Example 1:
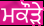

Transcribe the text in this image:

ਮਕੌੜੇ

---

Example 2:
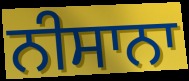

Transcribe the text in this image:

ਨੀਸਾਨਾ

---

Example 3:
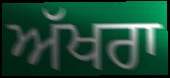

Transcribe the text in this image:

ਅੱਖਰਾ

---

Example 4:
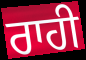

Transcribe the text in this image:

ਰਾਹੀ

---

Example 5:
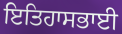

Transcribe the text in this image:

ਇਤਿਹਾਸਭਾਈ